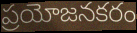
ప్రయోజనకరం